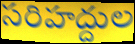
సరిహద్దుల